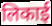
लिकाई